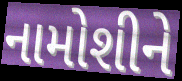
નામોશીને